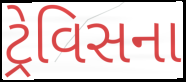
ટ્રેવિસના